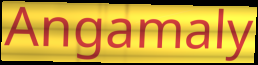
Angamaly